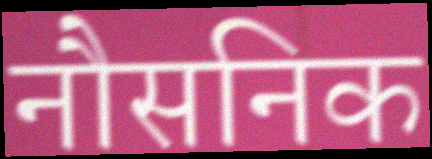
नौसनिक